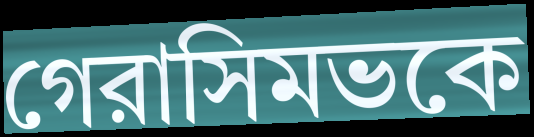
গেরাসিমভকে